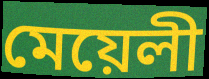
মেয়েলী